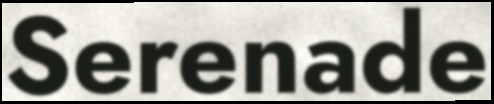
Serenade